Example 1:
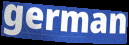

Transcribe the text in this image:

german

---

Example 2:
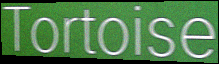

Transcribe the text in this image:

Tortoise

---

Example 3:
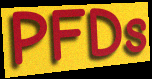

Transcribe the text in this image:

PFDs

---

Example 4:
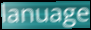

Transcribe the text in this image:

lanuage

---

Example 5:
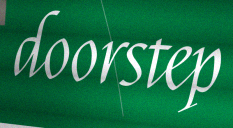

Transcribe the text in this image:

doorstep